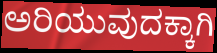
ಅರಿಯುವುದಕ್ಕಾಗಿ